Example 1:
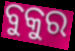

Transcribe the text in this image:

ବୁକୁର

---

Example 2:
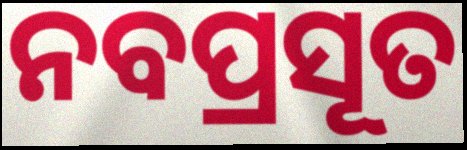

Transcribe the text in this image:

ନବପ୍ରସୂତ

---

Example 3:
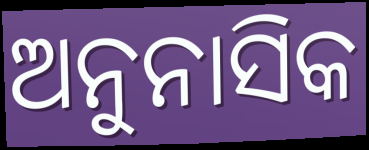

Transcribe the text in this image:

ଅନୁନାସିକ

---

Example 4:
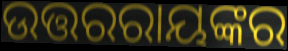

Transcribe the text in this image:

ଉତ୍ତରରାୟଙ୍କର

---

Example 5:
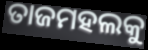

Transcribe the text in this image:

ତାଜମହଲକୁ